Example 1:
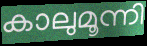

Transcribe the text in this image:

കാലുമൂന്നി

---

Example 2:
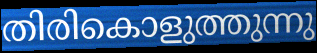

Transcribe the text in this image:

തിരികൊളുത്തുന്നു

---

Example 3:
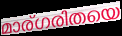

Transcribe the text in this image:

മാര്ഗരിതയെ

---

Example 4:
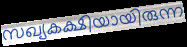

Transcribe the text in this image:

സഖ്യകക്ഷിയായിരുന്ന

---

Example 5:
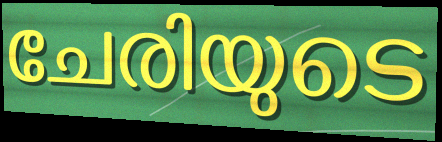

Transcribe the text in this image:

ചേരിയുടെ